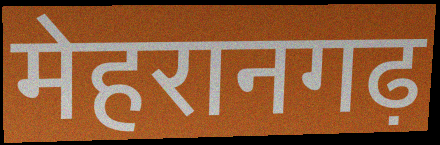
मेहरानगढ़